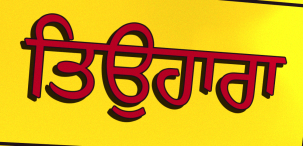
ਤਿਉਹਾਰਾ